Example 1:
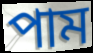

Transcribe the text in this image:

পাম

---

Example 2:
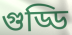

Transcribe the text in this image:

গুড্ডি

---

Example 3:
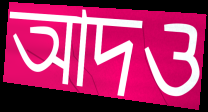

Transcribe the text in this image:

আদও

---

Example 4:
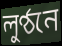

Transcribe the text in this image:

লুণ্ঠনে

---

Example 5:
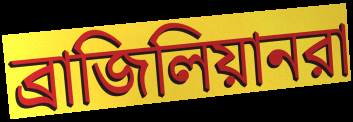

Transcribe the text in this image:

ব্রাজিলিয়ানরা